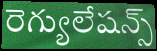
రెగ్యులేషన్స్